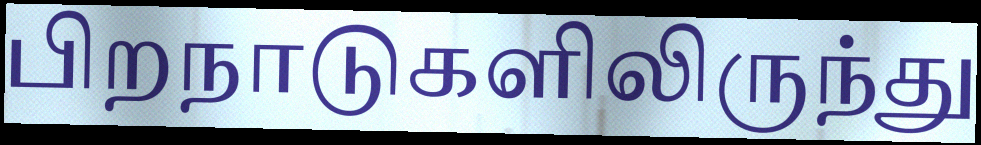
பிறநாடுகளிலிருந்து